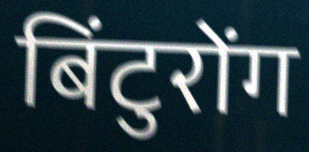
बिंटुरोंग